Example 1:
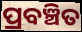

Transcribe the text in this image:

ପ୍ରବଞ୍ଚିତ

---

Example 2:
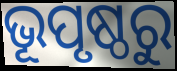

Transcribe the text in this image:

ଭୂପୃଷ୍ଠରୁ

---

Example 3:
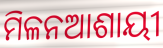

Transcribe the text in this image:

ମିଳନଆଶାୟୀ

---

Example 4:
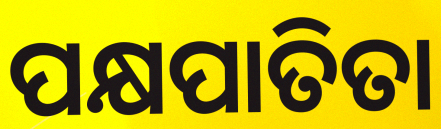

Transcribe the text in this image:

ପକ୍ଷପାତିତା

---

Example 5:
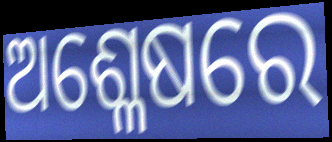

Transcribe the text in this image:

ଅଶ୍ଳେଷରେ